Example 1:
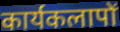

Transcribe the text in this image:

कार्यकलापों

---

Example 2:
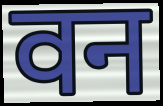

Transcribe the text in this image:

वन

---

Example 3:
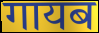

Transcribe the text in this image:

गायब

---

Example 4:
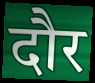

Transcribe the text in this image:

दौर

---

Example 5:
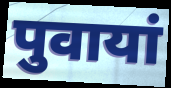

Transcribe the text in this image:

पुवायां